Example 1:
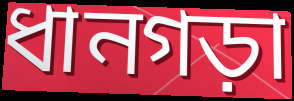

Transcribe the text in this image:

ধানগড়া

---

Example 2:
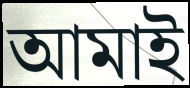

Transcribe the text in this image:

আমাই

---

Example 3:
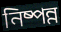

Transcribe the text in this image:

নিষ্পন্ন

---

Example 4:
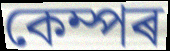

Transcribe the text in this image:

কেম্পৰ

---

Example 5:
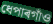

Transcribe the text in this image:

ধেপাৰগাঁও